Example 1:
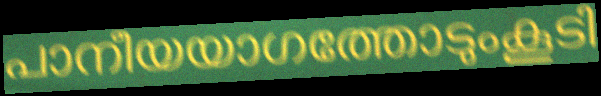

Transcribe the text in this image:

പാനീയയാഗത്തോടുംകൂടി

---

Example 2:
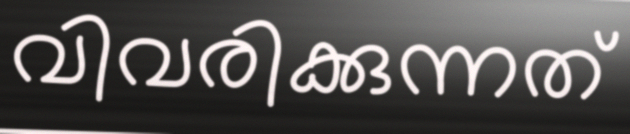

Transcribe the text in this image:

വിവരിക്കുന്നത്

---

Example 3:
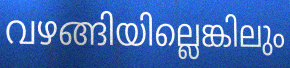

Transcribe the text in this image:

വഴങ്ങിയില്ലെങ്കിലും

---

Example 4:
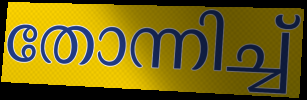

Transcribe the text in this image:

തോന്നിച്ച്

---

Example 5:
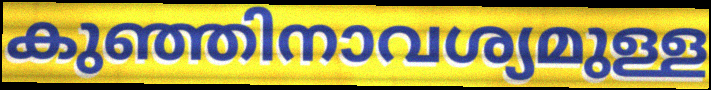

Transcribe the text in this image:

കുഞ്ഞിനാവശ്യമുള്ള